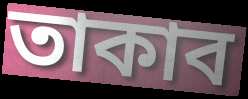
তাকাব